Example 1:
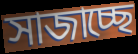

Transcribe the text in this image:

সাজাচ্ছে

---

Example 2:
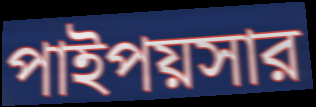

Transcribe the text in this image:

পাইপয়সার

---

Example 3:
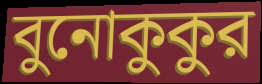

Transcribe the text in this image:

বুনোকুকুর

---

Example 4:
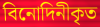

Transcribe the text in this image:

বিনোদিনীকৃত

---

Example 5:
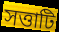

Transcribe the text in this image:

সত্তাটি